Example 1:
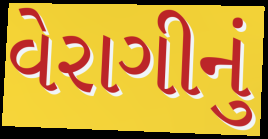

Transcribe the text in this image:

વેરાગીનું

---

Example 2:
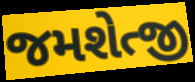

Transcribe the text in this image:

જમશેત્જી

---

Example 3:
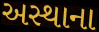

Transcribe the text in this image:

અસ્થાના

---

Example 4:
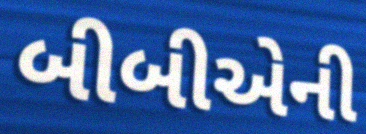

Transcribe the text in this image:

બીબીએની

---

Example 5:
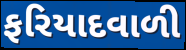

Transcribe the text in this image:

ફરિયાદવાળી